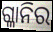
ଗ୍ଳାନିର